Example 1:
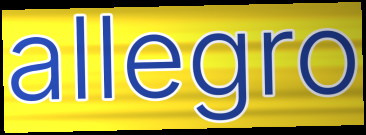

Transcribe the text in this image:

allegro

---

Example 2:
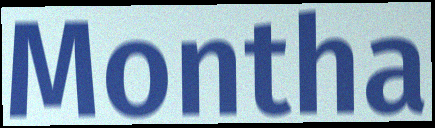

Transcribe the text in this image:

Montha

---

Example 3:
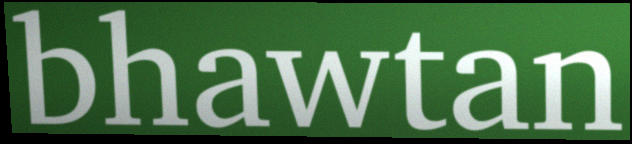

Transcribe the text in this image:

bhawtan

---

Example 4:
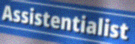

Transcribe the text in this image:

Assistentialist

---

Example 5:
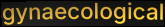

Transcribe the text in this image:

gynaecological